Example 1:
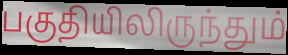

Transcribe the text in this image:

பகுதியிலிருந்தும்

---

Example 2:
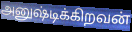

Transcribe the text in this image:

அனுஷ்டிக்கிறவன்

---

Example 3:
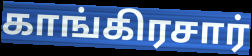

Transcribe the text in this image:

காங்கிரசார்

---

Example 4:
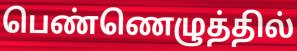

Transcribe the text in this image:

பெண்ணெழுத்தில்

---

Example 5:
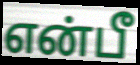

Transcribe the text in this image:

என்பீ